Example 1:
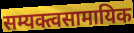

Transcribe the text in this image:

सम्यक्त्वसामायिक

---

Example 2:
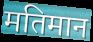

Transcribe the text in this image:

मतिमान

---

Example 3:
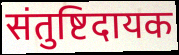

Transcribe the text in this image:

संतुष्टिदायक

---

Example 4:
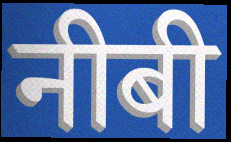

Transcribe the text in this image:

नीबी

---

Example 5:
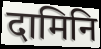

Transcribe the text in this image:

दामिनि